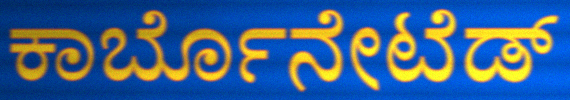
ಕಾರ್ಬೊನೇಟೆಡ್